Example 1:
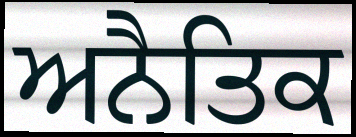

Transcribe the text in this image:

ਅਨੈਤਿਕ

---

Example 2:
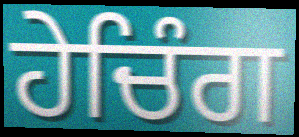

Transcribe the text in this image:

ਹੇਚਿੰਗ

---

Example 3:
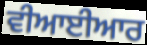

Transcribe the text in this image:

ਵੀਆਈਆਰ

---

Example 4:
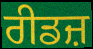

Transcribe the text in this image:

ਰੀਡਜ਼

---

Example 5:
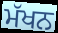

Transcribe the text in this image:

ਮੱਖਨ